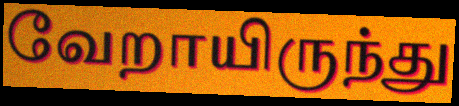
வேறாயிருந்து